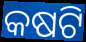
କଷଟି